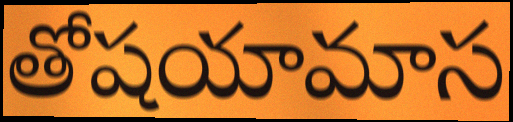
తోషయామాస